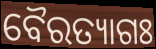
ବୈରତ୍ୟାଗଃ